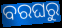
ବରଘରୁ